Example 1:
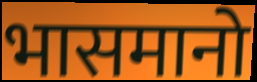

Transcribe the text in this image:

भासमानो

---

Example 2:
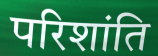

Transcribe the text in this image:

परिशांति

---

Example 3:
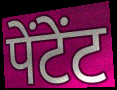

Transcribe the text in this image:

पेंटेंट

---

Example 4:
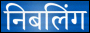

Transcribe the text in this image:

निबलिंग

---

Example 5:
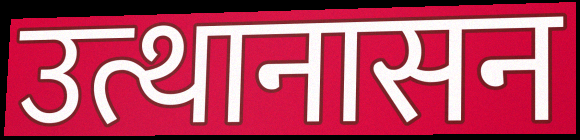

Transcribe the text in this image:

उत्थानासन